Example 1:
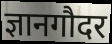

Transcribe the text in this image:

ज्ञानगौदर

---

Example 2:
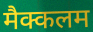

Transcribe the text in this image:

मैक्कलम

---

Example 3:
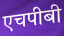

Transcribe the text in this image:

एचपीबी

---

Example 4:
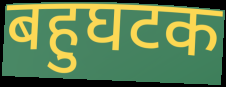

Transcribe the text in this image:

बहुघटक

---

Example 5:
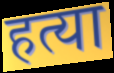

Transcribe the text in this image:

हत्‍या